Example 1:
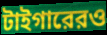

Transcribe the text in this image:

টাইগারেরও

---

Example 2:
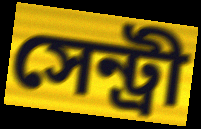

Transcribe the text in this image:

সেন্ট্রী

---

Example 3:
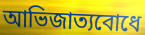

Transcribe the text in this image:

আভিজাত্যবোধে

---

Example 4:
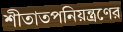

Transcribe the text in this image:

শীতাতপনিয়ন্ত্রণের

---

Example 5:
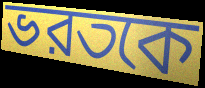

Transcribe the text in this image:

ভরতকে